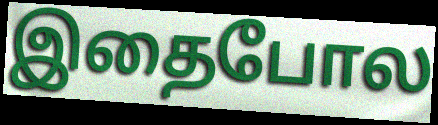
இதைபோல